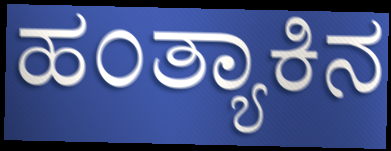
ಹಂತ್ಯಾಕಿನ